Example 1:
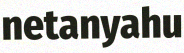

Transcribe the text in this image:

netanyahu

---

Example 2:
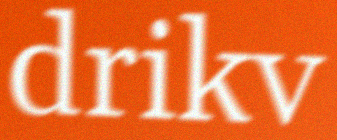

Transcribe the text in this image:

drikv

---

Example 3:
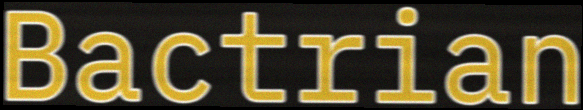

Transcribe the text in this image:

Bactrian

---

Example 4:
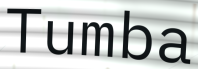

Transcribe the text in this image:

Tumba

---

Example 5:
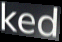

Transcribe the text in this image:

ked